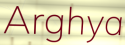
Arghya